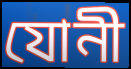
যোনী